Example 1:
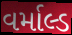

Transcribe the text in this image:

વર્માલ્ડ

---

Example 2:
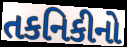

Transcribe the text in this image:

તકનિકીનો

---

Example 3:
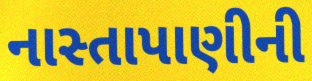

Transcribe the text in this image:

નાસ્તાપાણીની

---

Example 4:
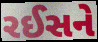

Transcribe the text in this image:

રઈસને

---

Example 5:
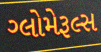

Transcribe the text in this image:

ગ્લોમેરૂલ્સ